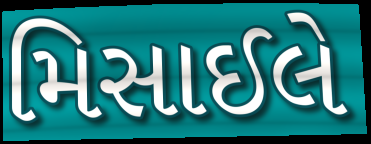
મિસાઈલે